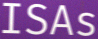
ISAs